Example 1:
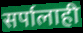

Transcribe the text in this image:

सर्पालाही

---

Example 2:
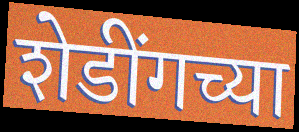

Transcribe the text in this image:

शेडींगच्या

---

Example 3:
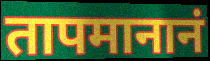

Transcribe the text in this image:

तापमानानं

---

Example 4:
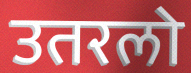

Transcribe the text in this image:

उतरलो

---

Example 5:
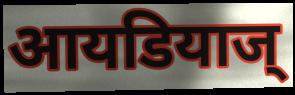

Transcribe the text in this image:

आयडियाज्